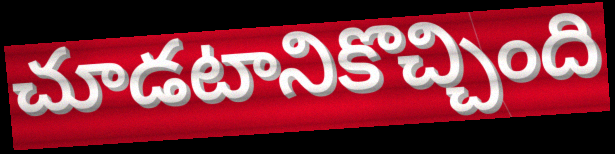
చూడటానికొచ్చింది